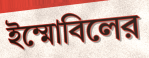
ইম্মোবিলের